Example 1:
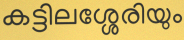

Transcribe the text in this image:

കട്ടിലശ്ശേരിയും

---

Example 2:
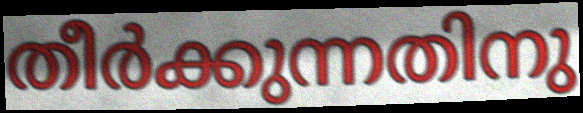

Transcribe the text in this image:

തീർക്കുന്നതിനു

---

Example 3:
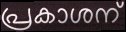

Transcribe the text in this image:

പ്രകാശന്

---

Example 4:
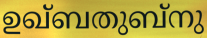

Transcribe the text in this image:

ഉഖ്ബതുബ്നു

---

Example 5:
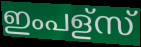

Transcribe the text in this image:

ഇംപള്സ്